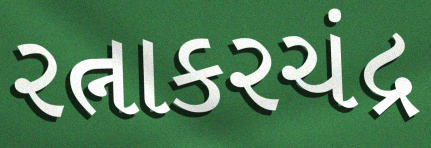
રત્નાકરચંદ્ર